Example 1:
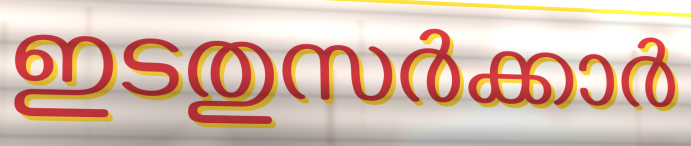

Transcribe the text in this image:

ഇടതുസർക്കാർ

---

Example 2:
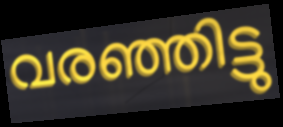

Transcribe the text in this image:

വരഞ്ഞിട്ടു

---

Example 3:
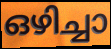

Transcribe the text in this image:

ഒഴിച്ചാ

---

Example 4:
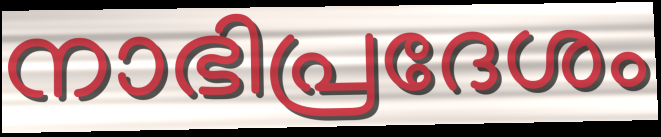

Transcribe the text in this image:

നാഭിപ്രദേശം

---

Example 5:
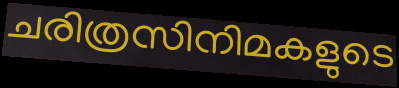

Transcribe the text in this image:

ചരിത്രസിനിമകളുടെ